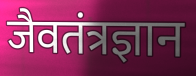
जैवतंत्रज्ञान